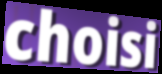
choisi